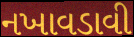
નખાવડાવી